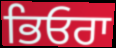
ਭਿਓਰਾ